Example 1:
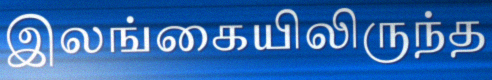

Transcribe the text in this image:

இலங்கையிலிருந்த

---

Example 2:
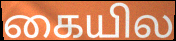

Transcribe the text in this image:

கையில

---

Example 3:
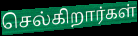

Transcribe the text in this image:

செல்கிறார்கள்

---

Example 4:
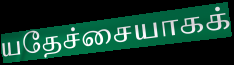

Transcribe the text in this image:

யதேச்சையாகக்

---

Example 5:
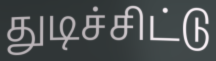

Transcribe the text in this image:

துடிச்சிட்டு